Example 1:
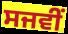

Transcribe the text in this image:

ਸਜਵੀਂ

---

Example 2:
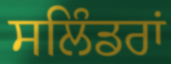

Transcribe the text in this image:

ਸਲਿੰਡਰਾਂ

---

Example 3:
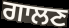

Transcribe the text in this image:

ਗਾਲਣ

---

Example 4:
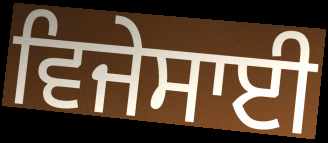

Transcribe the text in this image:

ਵਿਜੇਸਾਈ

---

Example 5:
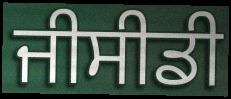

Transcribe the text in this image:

ਜੀਸੀਡੀ